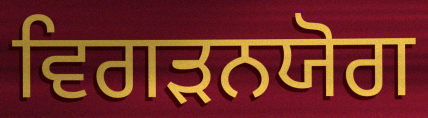
ਵਿਗੜਨਯੋਗ